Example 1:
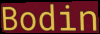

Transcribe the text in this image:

Bodin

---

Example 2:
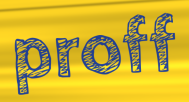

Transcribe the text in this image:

proff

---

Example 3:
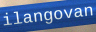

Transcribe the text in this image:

ilangovan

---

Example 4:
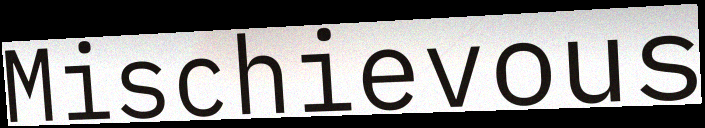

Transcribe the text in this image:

Mischievous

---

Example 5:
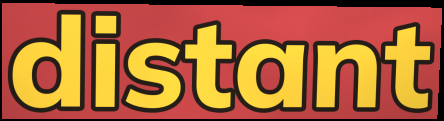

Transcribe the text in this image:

distant